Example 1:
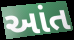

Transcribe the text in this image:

આંત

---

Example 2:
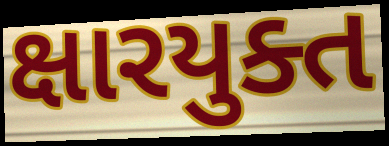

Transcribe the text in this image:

ક્ષારયુક્ત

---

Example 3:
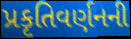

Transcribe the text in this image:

પ્રકૃતિવર્ણનની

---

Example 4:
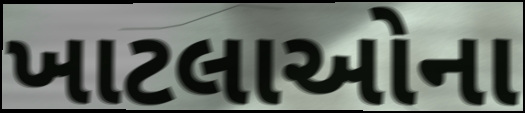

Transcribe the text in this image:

ખાટલાઓના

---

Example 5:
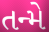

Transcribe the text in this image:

તન્મે